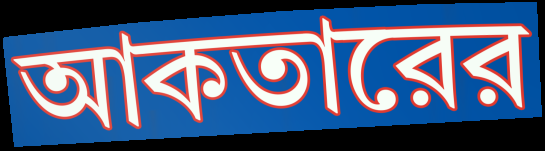
আকতারের